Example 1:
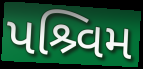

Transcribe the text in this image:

પશ્ર્વિમ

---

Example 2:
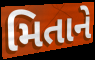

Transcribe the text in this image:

મિતાને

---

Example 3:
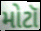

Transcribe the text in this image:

મોટૉ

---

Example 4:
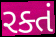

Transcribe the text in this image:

રક્તં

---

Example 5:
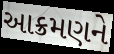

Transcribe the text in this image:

આક્રમણને